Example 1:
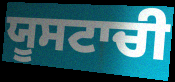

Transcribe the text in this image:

ਯੂਸਟਾਚੀ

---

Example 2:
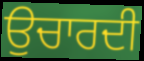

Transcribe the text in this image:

ਉਚਾਰਦੀ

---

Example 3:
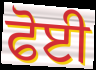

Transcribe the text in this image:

ਫੋਈ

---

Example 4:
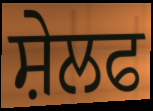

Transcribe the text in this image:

ਸ਼ੇਲਫ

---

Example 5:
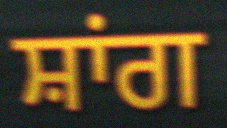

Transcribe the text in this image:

ਸ਼ਾਂਗ